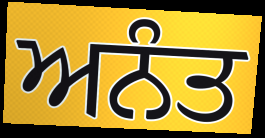
ਅਨੰਤ